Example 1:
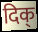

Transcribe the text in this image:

दिक्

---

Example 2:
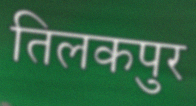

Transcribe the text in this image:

तिलकपुर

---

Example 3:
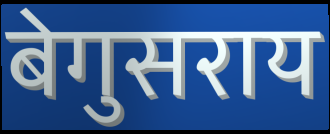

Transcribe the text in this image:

बेगुसराय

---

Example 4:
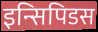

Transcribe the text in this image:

इन्सिपिडस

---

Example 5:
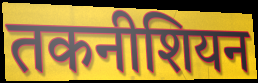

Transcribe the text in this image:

तकनीशियन